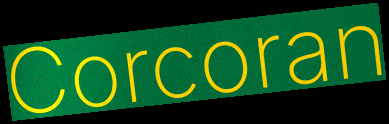
Corcoran